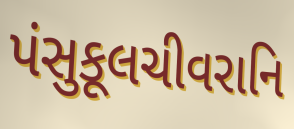
પંસુકૂલચીવરાનિ